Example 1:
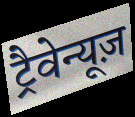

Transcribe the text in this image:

ट्रैवेन्यूज़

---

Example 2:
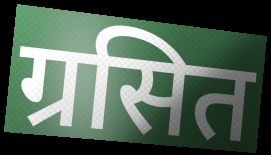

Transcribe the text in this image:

ग्रसित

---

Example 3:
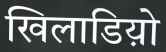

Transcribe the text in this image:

खिलाडिय़ो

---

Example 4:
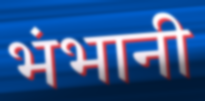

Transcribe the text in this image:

भंभानी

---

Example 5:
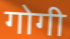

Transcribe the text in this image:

गोगी